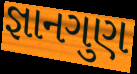
જ્ઞાનગુણ